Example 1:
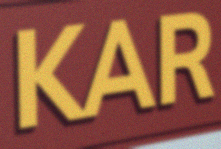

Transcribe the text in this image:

KAR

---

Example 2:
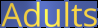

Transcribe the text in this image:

Adults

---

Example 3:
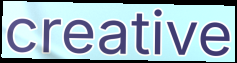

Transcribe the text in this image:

creative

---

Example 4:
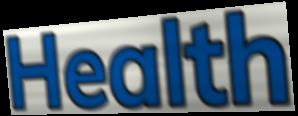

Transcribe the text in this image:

Health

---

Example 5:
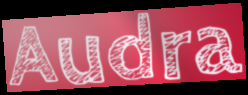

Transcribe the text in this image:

Audra